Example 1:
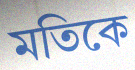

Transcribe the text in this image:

মতিকে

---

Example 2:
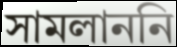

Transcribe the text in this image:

সামলাননি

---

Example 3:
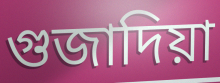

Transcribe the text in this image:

গুজাদিয়া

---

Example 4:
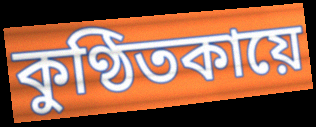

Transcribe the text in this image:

কুণ্ঠিতকায়ে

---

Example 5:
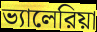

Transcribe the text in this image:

ভ্যালেরিয়া